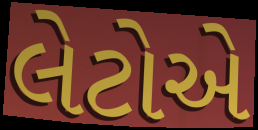
લેટોએ